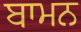
ਬਾਮਨ